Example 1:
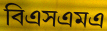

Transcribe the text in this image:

বিএসএমএ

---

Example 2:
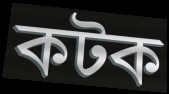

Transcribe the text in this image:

কটক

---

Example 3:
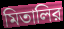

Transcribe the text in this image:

মিতালির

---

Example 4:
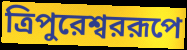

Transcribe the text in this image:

ত্রিপুরেশ্বররূপে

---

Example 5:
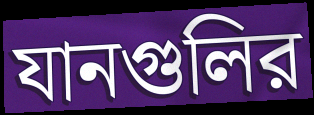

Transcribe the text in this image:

যানগুলির